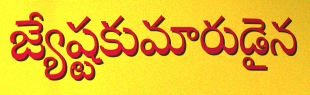
జ్యేష్టకుమారుడైన